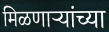
मिळणाऱ्यांच्या